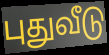
புதுவீடு